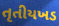
તૃતીયખડ